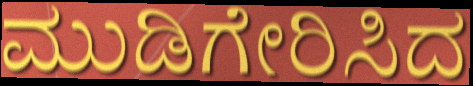
ಮುಡಿಗೇರಿಸಿದ